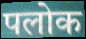
पलोक